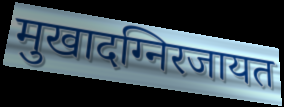
मुखादग्निरजायत